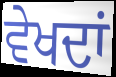
ਵੇਖਦਾਂ